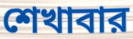
শেখাবার